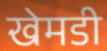
खेमडी